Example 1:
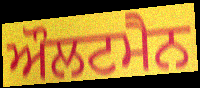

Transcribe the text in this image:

ਔਲਟਮੈਨ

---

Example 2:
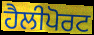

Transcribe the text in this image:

ਹੈਲੀਪੋਰਟ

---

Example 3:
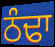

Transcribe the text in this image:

ਠੰਢਾ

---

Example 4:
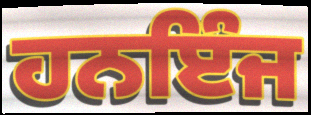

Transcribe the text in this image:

ਹਨਇੰਜ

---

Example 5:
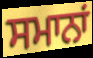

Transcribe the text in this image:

ਸਮਾਨਾਂ